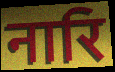
नारि